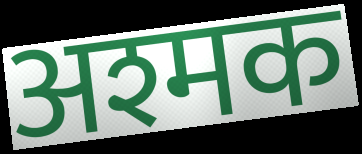
अश्मक